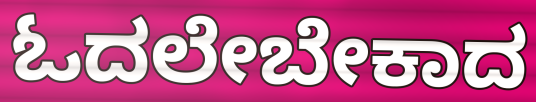
ಓದಲೇಬೇಕಾದ